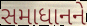
સમાધાનને